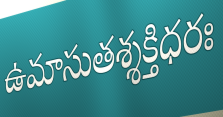
ఉమాసుతశ్శక్తిధరః